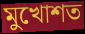
মুখোশত